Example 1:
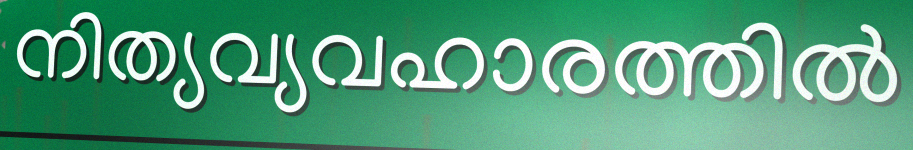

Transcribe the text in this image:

നിത്യവ്യവഹാരത്തിൽ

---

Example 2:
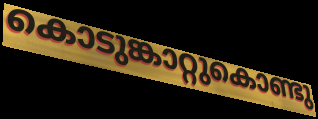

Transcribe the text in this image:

കൊടുങ്കാറ്റുകൊണ്ടു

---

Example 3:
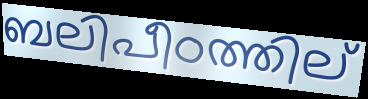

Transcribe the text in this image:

ബലിപീഠത്തില്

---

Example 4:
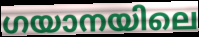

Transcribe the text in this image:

ഗയാനയിലെ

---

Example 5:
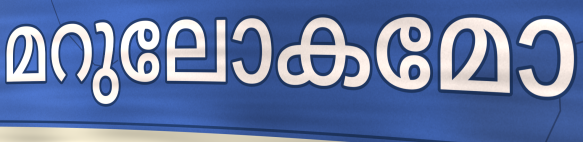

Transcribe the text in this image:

മറുലോകമോ